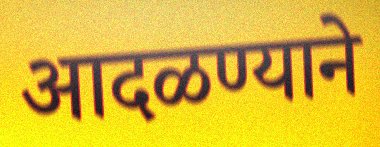
आदळण्याने